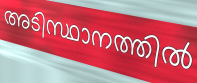
അടിസ്ഥാനത്തിൽ